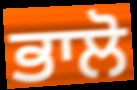
ਭਾਲੋ